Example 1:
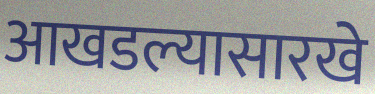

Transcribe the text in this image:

आखडल्यासारखे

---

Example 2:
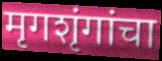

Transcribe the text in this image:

मृगशृंगांचा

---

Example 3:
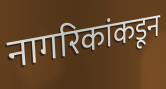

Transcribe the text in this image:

नागरिकांकडून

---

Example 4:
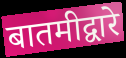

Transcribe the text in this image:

बातमीद्वारे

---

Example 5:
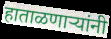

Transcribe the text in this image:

हाताळणाऱ्यांनी